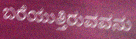
ಬರೆಯುತ್ತಿರುವವನು